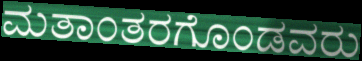
ಮತಾಂತರಗೊಂಡವರು